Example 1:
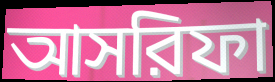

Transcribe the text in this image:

আসরিফা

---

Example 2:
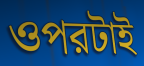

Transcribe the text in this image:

ওপরটাই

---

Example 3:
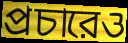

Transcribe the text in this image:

প্রচারেও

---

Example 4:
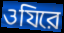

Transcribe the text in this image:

ওযিরে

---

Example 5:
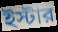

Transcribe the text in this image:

ইস্টার